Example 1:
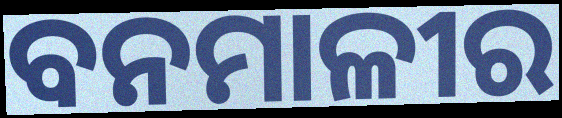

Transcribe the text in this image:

ବନମାଳୀର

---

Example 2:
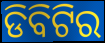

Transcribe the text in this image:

ଡିବିଟିର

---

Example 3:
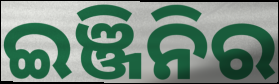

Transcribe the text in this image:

ଇଞ୍ଜିନିର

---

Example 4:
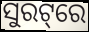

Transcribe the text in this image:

ସୁରଟ୍‌ରେ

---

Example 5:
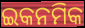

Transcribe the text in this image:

ଇକନମିକ